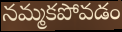
నమ్మకపోవడం